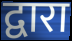
द्वारा